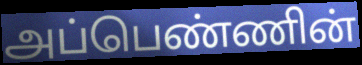
அப்பெண்ணின்